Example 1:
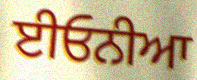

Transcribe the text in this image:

ਈਓਨੀਆ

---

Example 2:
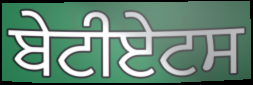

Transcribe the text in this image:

ਬੇਟੀਏਟਸ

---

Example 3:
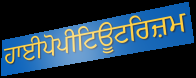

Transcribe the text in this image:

ਹਾਈਪੋਪੀਟਿਊਟਰਿਜ਼ਮ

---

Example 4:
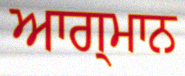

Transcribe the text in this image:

ਆਗ੍ਮਾਨ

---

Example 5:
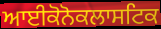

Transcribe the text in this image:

ਆਈਕੋਨੋਕਲਾਸਟਿਕ